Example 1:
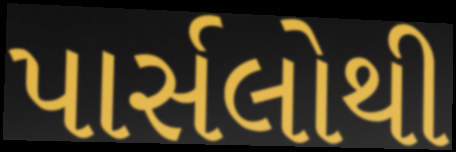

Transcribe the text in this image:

પાર્સલોથી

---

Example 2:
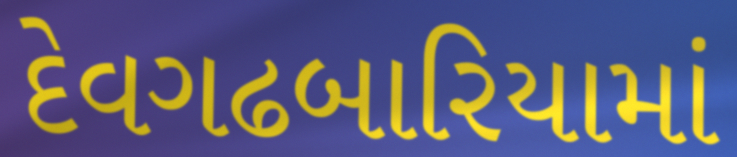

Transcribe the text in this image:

દેવગઢબારિયામાં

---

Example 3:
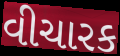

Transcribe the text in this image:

વીચારક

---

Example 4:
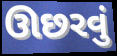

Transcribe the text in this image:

ઊછરવું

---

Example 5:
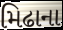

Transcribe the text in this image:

મિઢાના